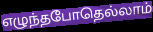
எழுந்தபோதெல்லாம்